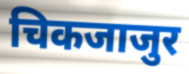
चिकजाजुर